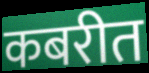
कबरीत